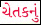
ચેતકનું